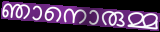
ഞാനൊരുമ്മ